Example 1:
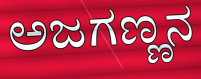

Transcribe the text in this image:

ಅಜಗಣ್ಣನ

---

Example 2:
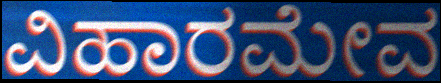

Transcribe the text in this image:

ವಿಹಾರಮೇವ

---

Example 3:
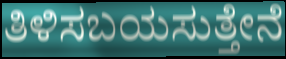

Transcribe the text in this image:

ತಿಳಿಸಬಯಸುತ್ತೇನೆ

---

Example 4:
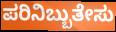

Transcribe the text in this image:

ಪರಿನಿಬ್ಬುತೇಸು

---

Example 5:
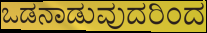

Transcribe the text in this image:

ಒಡನಾಡುವುದರಿಂದ